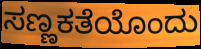
ಸಣ್ಣಕತೆಯೊಂದು